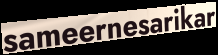
sameernesarikar